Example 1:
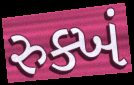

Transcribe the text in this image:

રુક્ખં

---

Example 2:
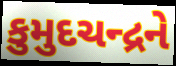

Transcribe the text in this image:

કુમુદચન્દ્રને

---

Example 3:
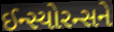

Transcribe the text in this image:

ઈન્સ્યોરન્સને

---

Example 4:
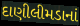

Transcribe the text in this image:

દાણીલીમડાનાં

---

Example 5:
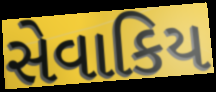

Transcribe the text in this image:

સેવાકિય